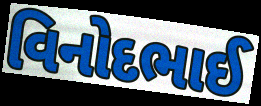
વિનોદભાઈ